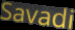
Savadi